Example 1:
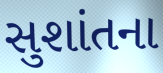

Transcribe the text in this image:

સુશાંતના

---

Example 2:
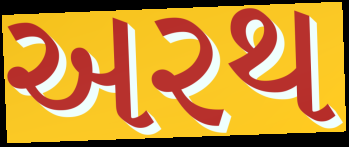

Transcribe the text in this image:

અરથ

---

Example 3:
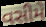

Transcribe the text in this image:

વસીમે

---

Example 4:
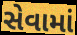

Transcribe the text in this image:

સેવામાં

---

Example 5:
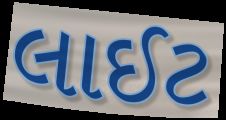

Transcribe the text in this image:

લાઈટ